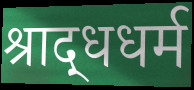
श्राद्धधर्म